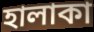
হালাকা